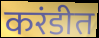
करंडीत